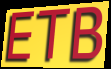
ETB